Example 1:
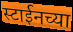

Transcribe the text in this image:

स्टाईनच्या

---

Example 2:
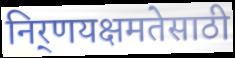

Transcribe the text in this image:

निर्णयक्षमतेसाठी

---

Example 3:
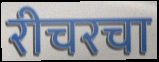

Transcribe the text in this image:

रीचरचा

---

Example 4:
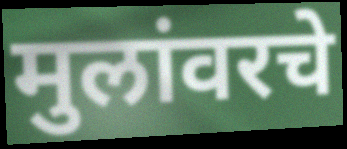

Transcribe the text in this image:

मुलांवरचे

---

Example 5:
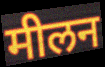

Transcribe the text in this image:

मीलन